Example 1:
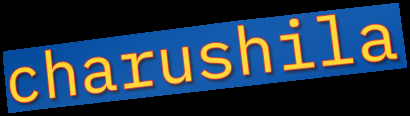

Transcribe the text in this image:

charushila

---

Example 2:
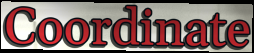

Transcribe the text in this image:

Coordinate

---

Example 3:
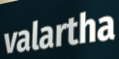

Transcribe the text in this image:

valartha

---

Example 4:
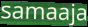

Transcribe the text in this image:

samaaja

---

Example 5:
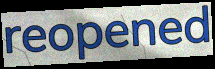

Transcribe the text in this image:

reopened